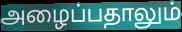
அழைப்பதாலும்